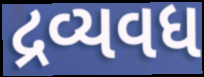
દ્રવ્યવધ